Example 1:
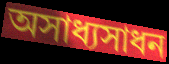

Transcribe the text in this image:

অসাধ্যসাধন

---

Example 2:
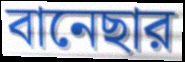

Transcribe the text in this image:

বানেছার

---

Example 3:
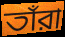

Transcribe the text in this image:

তাঁরা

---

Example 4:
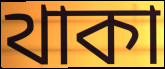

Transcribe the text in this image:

থাকা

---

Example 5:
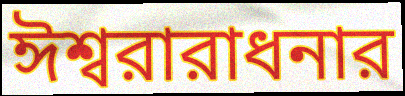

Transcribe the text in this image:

ঈশ্বরারাধনার